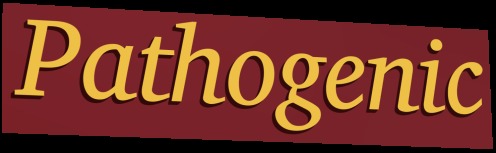
Pathogenic